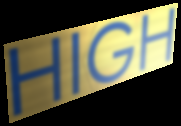
HIGH